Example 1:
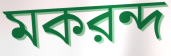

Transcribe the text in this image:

মকরন্দ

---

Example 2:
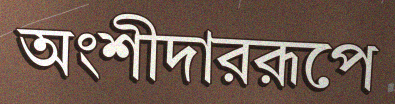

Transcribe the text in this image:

অংশীদাররূপে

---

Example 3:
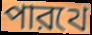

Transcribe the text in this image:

পারথে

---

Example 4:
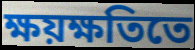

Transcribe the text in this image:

ক্ষয়ক্ষতিতে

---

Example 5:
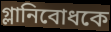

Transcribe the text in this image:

গ্লানিবোধকে